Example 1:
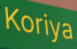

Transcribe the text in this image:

Koriya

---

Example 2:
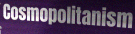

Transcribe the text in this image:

Cosmopolitanism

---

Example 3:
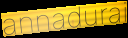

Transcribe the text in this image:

annadurai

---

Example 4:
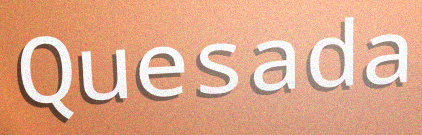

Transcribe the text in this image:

Quesada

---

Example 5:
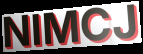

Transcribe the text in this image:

NIMCJ